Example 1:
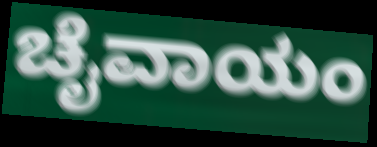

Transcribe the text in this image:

ಚೈವಾಯಂ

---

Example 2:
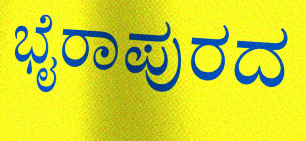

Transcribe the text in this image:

ಭೈರಾಪುರದ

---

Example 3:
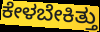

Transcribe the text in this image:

ಕೇಳಬೇಕಿತ್ತು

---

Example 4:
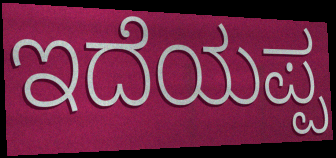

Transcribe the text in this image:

ಇದೆಯಪ್ಪ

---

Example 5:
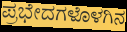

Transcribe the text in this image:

ಪ್ರಭೇದಗಳೊಳಗಿನ